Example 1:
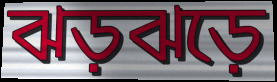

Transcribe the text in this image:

ঝড়ঝড়ে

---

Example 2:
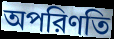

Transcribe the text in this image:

অপরিণতি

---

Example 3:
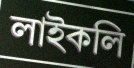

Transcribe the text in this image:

লাইকলি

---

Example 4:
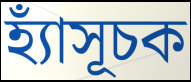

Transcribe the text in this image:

হ্যাঁসূচক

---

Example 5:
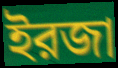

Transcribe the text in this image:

ইরজা